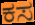
ಕಸ